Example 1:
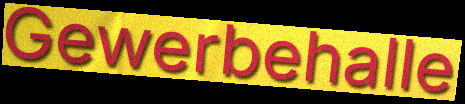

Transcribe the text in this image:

Gewerbehalle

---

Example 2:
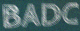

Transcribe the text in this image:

BADC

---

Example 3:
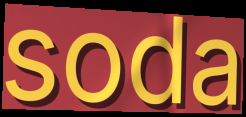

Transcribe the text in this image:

soda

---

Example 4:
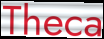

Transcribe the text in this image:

Theca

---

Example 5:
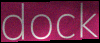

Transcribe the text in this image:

dock